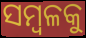
ସମ୍ବଳକୁ